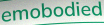
emobodied